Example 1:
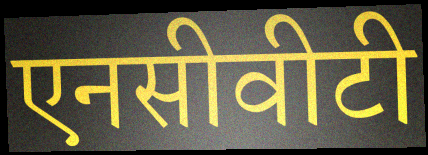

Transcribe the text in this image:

एनसीवीटी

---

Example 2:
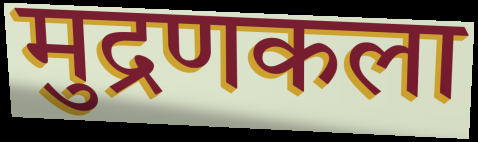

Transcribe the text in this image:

मुद्रणकला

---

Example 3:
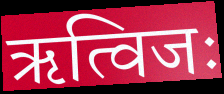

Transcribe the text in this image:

ऋत्विजः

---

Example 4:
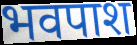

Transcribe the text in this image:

भवपाश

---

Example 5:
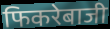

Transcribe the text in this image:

फिकरेबाजी